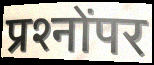
प्रश्नोंपर